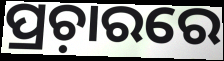
ପ୍ରଚ଼ାରରେ